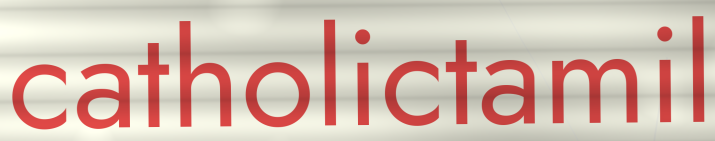
catholictamil